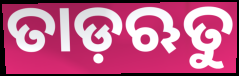
ତାଡ଼ଋତୁ